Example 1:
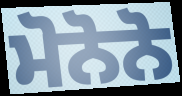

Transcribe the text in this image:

ਮੋਨੋਨੋ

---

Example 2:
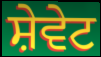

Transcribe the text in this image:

ਸ਼ੇਵੇਟ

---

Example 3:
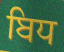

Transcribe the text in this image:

ਬਿਧ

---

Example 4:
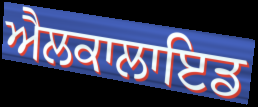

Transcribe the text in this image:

ਐਲਕਾਲਾਇਡ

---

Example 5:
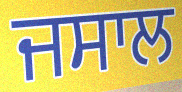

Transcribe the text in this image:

ਜਸਾਲ